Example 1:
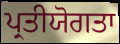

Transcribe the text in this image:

ਪ੍ਰਤੀਯੋਗਤਾ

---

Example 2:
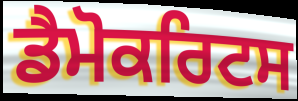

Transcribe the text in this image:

ਡੈਮੋਕਰਿਟਸ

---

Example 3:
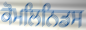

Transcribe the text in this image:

ਕੋਮਲਿਨਿਡਸ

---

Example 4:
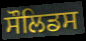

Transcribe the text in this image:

ਸੌਲਿਡਸ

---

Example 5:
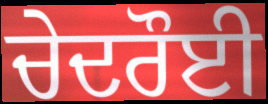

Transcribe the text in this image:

ਚੇਦਰੌਈ